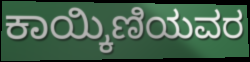
ಕಾಯ್ಕಿಣಿಯವರ